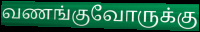
வணங்குவோருக்கு